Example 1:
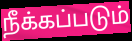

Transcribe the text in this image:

நீக்கப்படும்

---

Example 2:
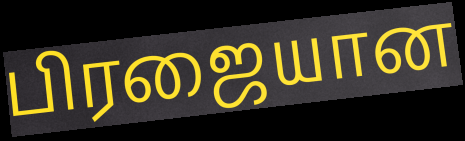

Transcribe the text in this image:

பிரஜையான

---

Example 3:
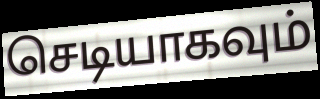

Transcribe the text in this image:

செடியாகவும்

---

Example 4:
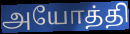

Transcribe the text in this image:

அயோத்தி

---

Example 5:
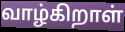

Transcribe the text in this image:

வாழ்கிறாள்